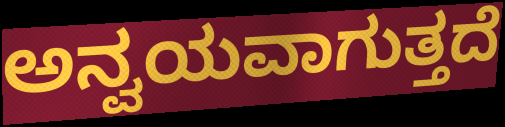
ಅನ್ವಯವಾಗುತ್ತದೆ